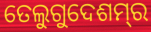
ତେଲୁଗୁଦେଶମ୍‌ର